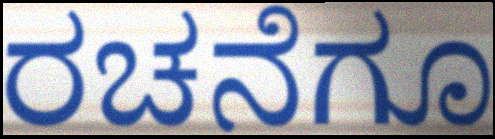
ರಚನೆಗೂ